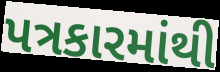
પત્રકારમાંથી